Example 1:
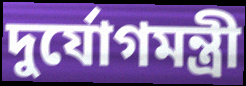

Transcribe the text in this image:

দুর্যোগমন্ত্রী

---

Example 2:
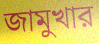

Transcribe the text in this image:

জামুখার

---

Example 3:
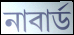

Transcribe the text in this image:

নাবার্ড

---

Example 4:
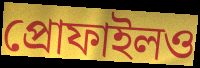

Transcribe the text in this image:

প্রোফাইলও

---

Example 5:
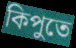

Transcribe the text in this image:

কিপুতে